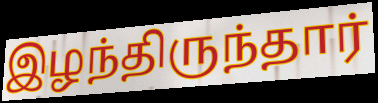
இழந்திருந்தார்